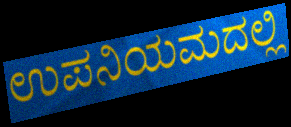
ಉಪನಿಯಮದಲ್ಲಿ